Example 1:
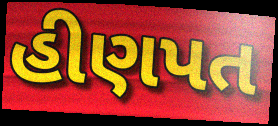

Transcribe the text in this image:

હીણપત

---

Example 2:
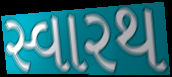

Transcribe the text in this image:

સ્વારથ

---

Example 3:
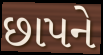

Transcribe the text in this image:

છાપને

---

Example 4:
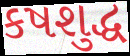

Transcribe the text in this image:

કષશુદ્ધ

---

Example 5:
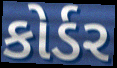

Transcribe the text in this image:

કોર્ડર